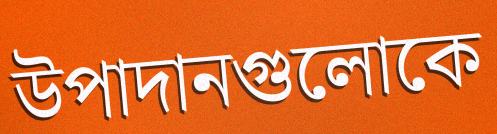
উপাদানগুলোকে